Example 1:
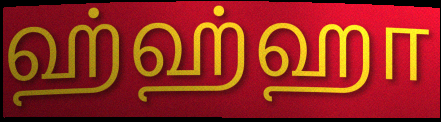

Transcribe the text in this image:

ஹ்ஹ்ஹா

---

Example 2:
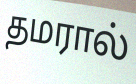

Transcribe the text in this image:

தமரால்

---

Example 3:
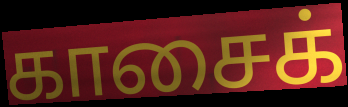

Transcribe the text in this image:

காசைக்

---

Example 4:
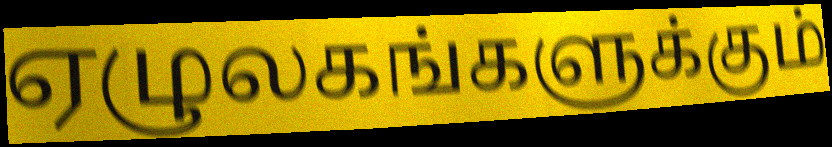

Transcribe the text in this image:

ஏழுலகங்களுக்கும்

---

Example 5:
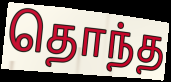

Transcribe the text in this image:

தொந்த